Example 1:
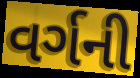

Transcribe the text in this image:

વર્ગની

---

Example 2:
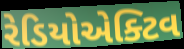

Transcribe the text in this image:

રેડિયોએક્ટિવ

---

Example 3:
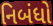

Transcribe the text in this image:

નિબંધો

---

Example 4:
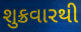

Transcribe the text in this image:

શુક્રવારથી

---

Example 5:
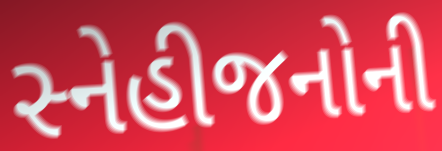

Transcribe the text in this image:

સ્નેહીજનોની